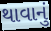
થાવાનું